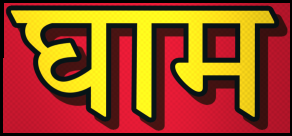
घाम